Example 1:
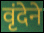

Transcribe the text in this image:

वृंदेने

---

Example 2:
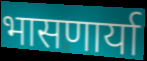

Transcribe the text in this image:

भासणार्या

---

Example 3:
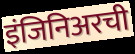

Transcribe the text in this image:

इंजिनिअरची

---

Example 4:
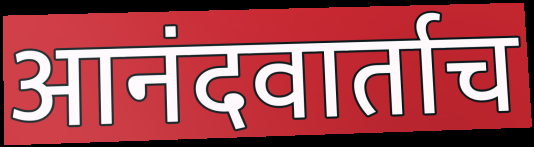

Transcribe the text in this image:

आनंदवार्ताच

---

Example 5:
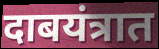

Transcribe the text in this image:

दाबयंत्रात